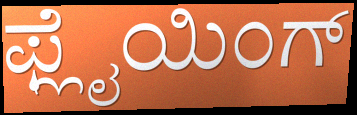
ಫ್ಲೈಯಿಂಗ್